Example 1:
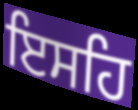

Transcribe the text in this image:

ਇਸਹਿ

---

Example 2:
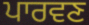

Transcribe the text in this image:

ਪਾਰਵਣ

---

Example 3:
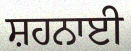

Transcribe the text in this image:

ਸ਼ਹਨਾਈ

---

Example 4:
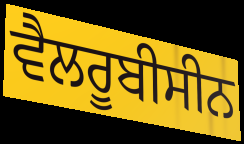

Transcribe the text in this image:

ਵੈਲਰੂਬੀਸੀਨ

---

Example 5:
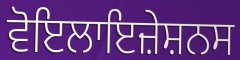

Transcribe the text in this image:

ਵੋਇਲਾਇਜ਼ੇਸ਼ਨਸ